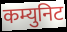
कम्युनिट